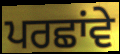
ਪਰਛਾਂਵੇ